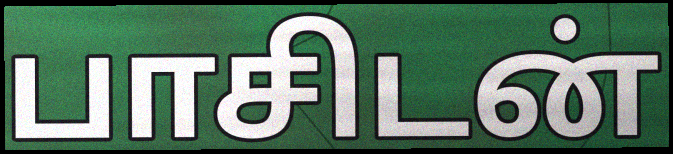
பாசிடன்